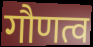
गौणत्व